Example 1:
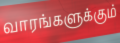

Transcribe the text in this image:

வாரங்களுக்கும்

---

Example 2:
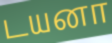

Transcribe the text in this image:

டயனா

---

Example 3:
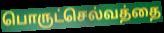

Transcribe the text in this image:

பொருட்செல்வத்தை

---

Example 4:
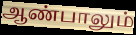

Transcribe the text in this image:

ஆண்பாலும்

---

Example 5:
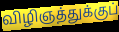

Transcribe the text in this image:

விழிஞத்துக்குப்